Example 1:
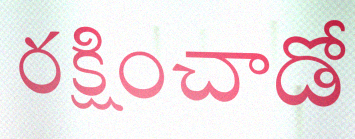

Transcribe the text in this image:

రక్షించాడో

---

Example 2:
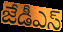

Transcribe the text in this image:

జేడీఎస్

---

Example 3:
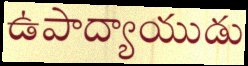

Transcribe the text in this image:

ఉపాద్యాయుడు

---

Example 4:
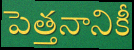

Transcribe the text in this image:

పెత్తనానికీ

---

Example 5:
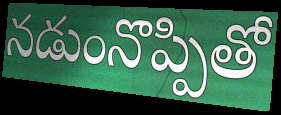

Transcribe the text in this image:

నడుంనొప్పితో